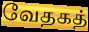
வேதகத்